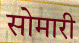
सोमारी